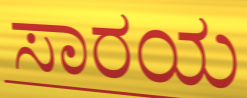
ಸಾರಯ